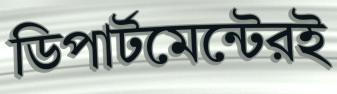
ডিপার্টমেন্টেরই